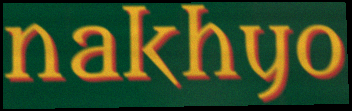
nakhyo